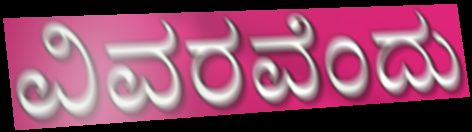
ವಿವರವೆಂದು